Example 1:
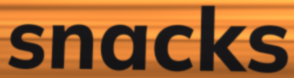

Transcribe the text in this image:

snacks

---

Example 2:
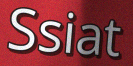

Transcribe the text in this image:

Ssiat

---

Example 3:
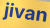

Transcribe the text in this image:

jivan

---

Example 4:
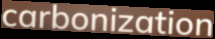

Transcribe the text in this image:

carbonization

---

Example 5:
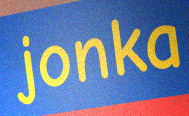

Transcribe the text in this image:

jonka